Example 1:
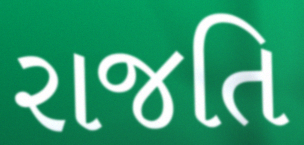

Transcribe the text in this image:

રાજતિ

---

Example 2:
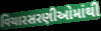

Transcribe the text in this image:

વિચારસરણીઓમાંથી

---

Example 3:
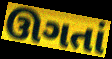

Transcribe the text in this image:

ઊગતાં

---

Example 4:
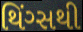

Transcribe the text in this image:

થિંગ્સથી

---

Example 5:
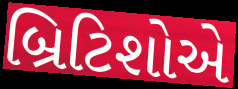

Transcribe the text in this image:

બ્રિટિશોએ